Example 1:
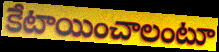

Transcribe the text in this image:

కేటాయించాలంటూ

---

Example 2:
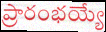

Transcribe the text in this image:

ప్రారంభయ్యే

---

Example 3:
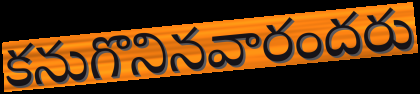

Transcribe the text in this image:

కనుగొనినవారందరు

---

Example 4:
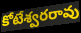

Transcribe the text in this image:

కోటేశ్వరరావు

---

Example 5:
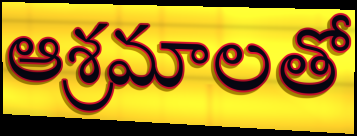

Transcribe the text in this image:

ఆశ్రమాలతో